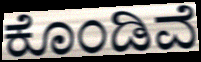
ಕೊಂಡಿವೆ